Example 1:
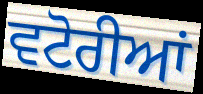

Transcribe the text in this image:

ਵਟੋਰੀਆਂ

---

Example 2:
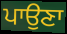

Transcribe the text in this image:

ਪਾਉਣਾ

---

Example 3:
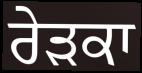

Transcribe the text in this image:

ਰੇੜਕਾ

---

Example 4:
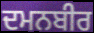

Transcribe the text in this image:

ਦਮਨਬੀਰ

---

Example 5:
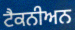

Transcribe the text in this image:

ਟੈਕਨੀਅਨ